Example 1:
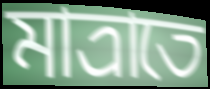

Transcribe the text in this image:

মাত্ৰাতে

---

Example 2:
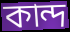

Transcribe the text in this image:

কান্দ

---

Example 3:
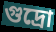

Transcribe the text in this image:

গুদ্ৰো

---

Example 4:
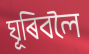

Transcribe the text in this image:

ঘূৰিবলৈ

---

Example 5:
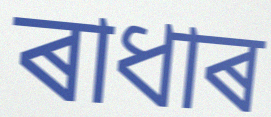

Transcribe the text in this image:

ৰাধাৰ